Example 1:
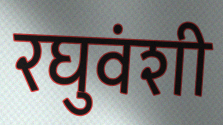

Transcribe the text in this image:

रघुवंशी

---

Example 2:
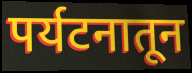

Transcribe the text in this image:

पर्यटनातून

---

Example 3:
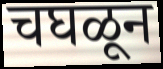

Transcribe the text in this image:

चघळून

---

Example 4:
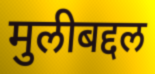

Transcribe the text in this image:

मुलीबद्दल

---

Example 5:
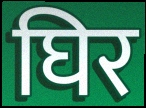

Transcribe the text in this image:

घिर